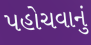
પહોચવાનું